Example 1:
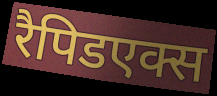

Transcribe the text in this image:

रैपिडएक्स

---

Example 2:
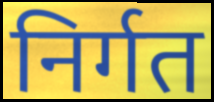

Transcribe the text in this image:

निर्गत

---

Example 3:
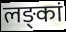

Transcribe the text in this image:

लङ्कां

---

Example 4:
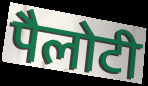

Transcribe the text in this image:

पैलोटी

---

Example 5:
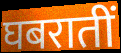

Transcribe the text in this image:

घबरातीं